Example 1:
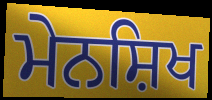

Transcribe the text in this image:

ਮੇਨਸ਼ਿਖ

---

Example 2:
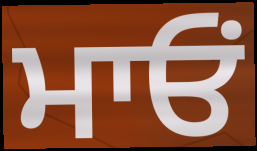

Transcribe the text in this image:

ਮਾਓਂ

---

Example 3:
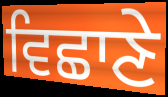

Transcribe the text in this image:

ਵਿਛਾਣੇ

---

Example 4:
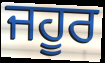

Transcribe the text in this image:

ਜਹੂਰ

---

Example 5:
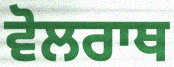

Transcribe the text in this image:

ਵੋਲਰਾਥ